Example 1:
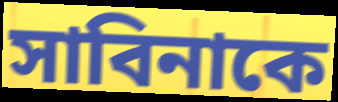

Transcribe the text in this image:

সাবিনাকে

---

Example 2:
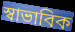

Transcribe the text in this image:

স্বাভাবিক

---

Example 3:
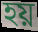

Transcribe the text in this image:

হয়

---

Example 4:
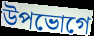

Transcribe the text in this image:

উপভোগে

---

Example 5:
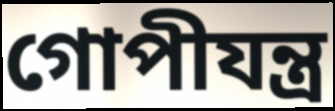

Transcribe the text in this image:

গোপীযন্ত্র